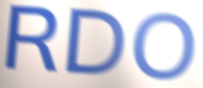
RDO